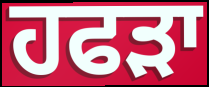
ਹਫੜਾ